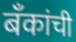
बॅँकांची